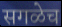
सगळेच